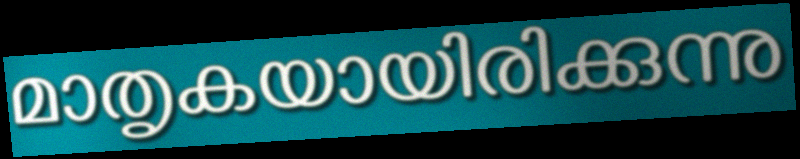
മാതൃകയായിരിക്കുന്നു